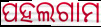
ପହଲଗାମ